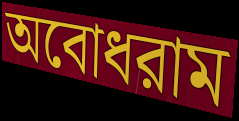
অবোধরাম